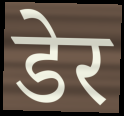
डेर